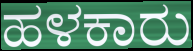
ಹಳಕಾರು